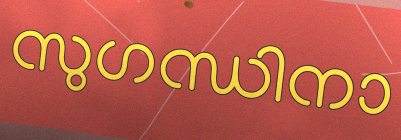
സുഗന്ധിനാ